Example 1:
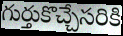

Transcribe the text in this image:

గుర్తుకొచ్చేసరికి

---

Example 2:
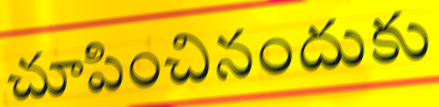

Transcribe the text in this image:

చూపించినందుకు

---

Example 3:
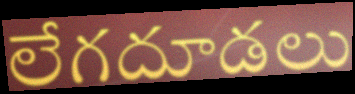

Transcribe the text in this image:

లేగదూడలు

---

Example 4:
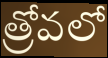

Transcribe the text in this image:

త్రోవలో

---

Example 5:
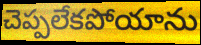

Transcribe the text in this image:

చెప్పలేకపోయాను